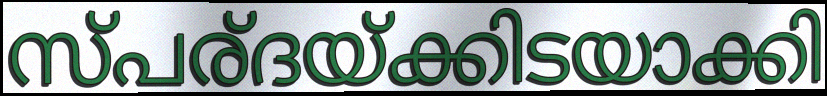
സ്പര്ദയ്ക്കിടയാക്കി